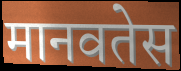
मानवतेस